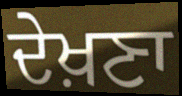
ਦੇਖ਼ਣਾ